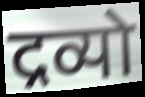
द्रव्यो